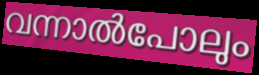
വന്നാൽപോലും